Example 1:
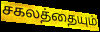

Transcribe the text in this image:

சகலத்தையும்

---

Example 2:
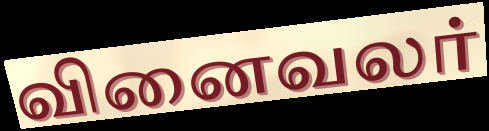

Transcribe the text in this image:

வினைவலர்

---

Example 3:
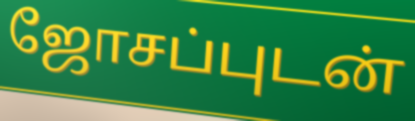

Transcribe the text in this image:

ஜோசப்புடன்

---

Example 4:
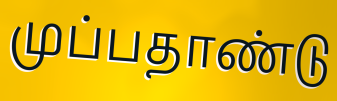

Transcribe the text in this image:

முப்பதாண்டு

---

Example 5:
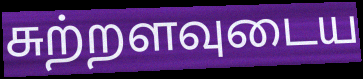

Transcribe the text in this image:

சுற்றளவுடைய